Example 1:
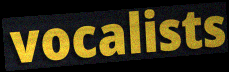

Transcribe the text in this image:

vocalists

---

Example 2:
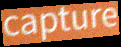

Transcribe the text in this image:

capture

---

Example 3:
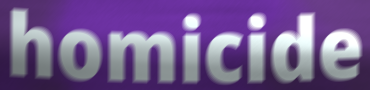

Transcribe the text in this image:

homicide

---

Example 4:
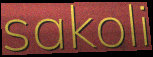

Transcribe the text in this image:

sakoli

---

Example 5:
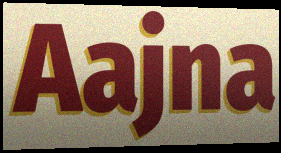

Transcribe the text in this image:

Aajna